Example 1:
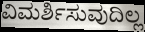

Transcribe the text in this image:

ವಿಮರ್ಶಿಸುವುದಿಲ್ಲ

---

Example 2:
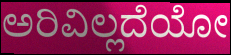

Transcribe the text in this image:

ಅರಿವಿಲ್ಲದೆಯೋ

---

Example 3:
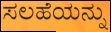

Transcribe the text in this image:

ಸಲಹೆಯನ್ನು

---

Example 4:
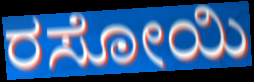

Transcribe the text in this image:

ರಸೋಯಿ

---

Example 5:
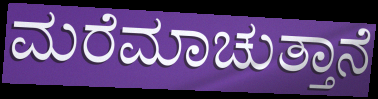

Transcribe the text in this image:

ಮರೆಮಾಚುತ್ತಾನೆ